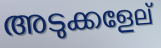
അടുക്കളേല്